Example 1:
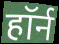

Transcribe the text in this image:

हॉर्न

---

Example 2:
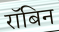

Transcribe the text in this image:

रॉबिन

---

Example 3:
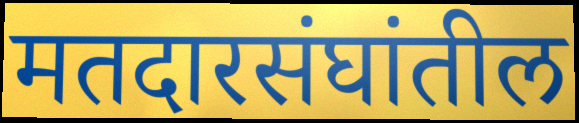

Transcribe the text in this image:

मतदारसंघांतील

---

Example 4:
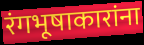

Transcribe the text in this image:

रंगभूषाकारांना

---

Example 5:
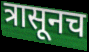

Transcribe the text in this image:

त्रासूनच